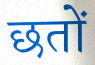
छतों